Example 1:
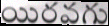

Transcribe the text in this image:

యిరవగు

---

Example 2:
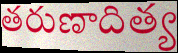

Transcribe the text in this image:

తరుణాదిత్య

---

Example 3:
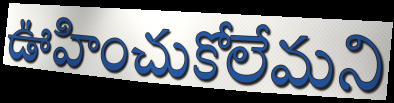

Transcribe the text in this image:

ఊహించుకోలేమని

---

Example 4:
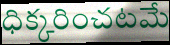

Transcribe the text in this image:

ధిక్కరించటమే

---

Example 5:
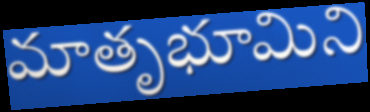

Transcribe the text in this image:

మాతృభూమిని